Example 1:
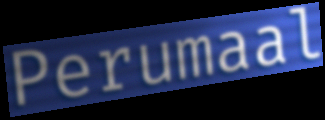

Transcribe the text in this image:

Perumaal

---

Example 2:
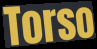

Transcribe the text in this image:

Torso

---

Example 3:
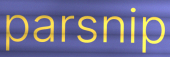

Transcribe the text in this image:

parsnip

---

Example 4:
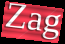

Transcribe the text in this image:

Zag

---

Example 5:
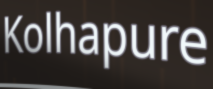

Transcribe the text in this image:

Kolhapure